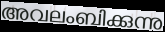
അവലംബിക്കുന്നു